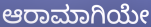
ಆರಾಮಾಗಿಯೇ